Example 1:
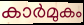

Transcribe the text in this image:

കാർമുകം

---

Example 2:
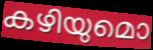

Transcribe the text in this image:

കഴിയുമൊ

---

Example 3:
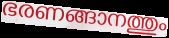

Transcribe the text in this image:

ഭരണങ്ങാനത്തും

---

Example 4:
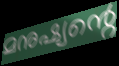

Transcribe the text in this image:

മനുഷ്യന്റെ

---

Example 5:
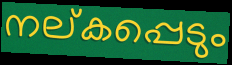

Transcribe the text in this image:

നല്കപ്പെടും